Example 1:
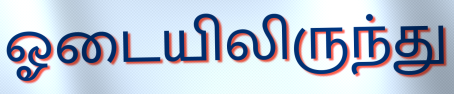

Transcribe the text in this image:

ஓடையிலிருந்து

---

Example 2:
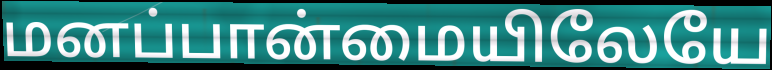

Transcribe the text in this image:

மனப்பான்மையிலேயே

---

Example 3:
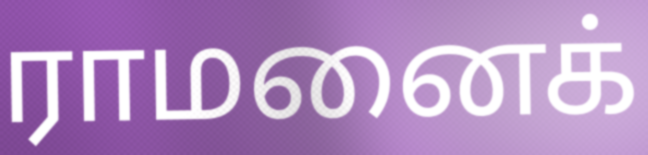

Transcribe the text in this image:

ராமனைக்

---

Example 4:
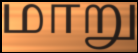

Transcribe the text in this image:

மாறு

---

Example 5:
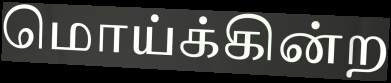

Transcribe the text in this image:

மொய்க்கின்ற